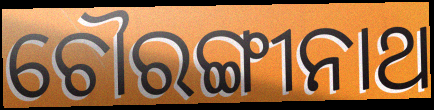
ଚୌରଙ୍ଗୀନାଥ